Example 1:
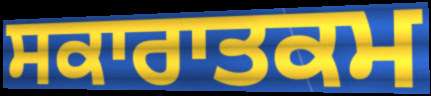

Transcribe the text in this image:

ਸਕਾਰਾਤਕਮ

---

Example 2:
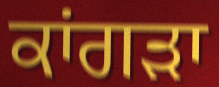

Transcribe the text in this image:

ਕਾਂਗਡ਼ਾ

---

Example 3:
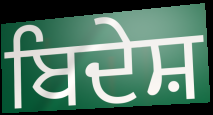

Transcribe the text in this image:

ਬਿਦੇਸ਼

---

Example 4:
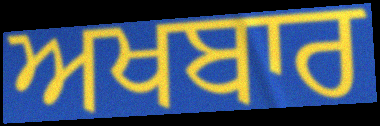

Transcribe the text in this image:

ਅਖਬਾਰ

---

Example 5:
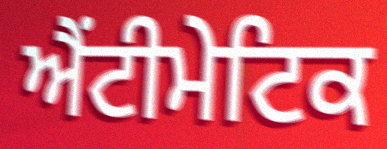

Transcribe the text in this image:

ਐਂਟੀਮੇਟਿਕ